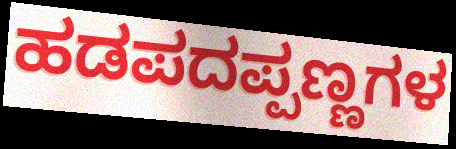
ಹಡಪದಪ್ಪಣ್ಣಗಳ